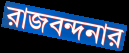
রাজবন্দনার